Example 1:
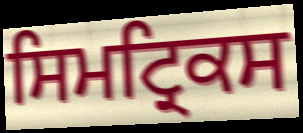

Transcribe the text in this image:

ਸਿਮਟ੍ਰਿਕਸ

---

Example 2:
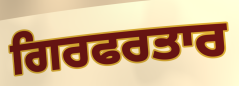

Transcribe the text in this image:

ਗਿਰਫਰਤਾਰ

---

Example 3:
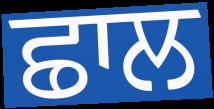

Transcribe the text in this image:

ਛਾਲ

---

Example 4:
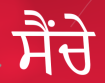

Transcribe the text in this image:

ਸੈਂਚੇ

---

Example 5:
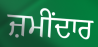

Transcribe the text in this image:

ਜ਼ਮੀਂਦਾਰ